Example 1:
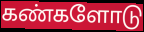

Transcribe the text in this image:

கண்களோடு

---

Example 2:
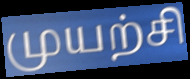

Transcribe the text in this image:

முயற்சி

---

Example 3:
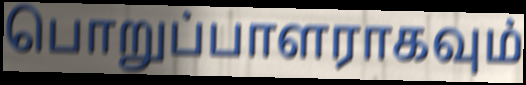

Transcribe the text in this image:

பொறுப்பாளராகவும்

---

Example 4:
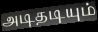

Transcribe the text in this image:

அடிதடியும்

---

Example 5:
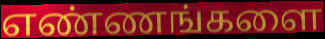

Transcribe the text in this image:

எண்ணங்களை